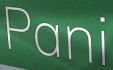
Pani